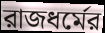
রাজধর্মের